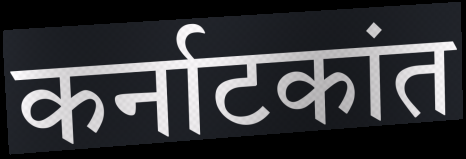
कर्नाटकांत